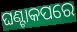
ଘଣ୍ଟାକପରେ